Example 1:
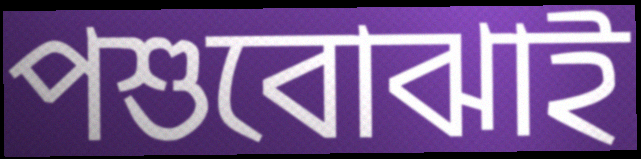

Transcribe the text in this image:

পশুবোঝাই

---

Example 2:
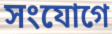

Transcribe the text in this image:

সংযোগে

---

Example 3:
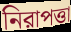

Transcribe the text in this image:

নিরাপত্তা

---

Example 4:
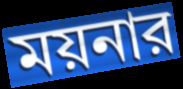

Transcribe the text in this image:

ময়নার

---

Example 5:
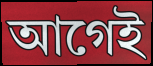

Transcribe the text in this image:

আগেই